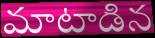
మాటాడిన